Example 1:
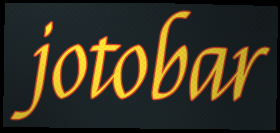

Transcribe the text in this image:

jotobar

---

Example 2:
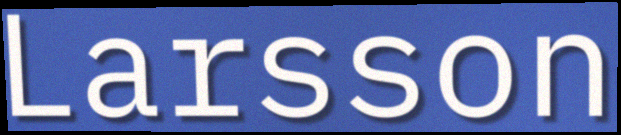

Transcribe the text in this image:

Larsson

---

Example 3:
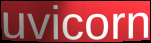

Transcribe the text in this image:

uvicorn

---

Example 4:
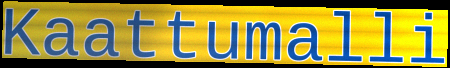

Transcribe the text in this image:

Kaattumalli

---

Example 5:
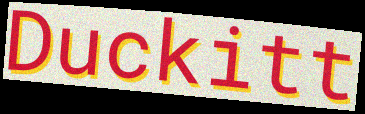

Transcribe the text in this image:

Duckitt